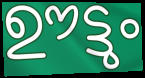
ഊട്ടും